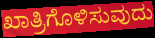
ಖಾತ್ರಿಗೊಳಿಸುವುದು